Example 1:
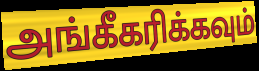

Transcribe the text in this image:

அங்கீகரிக்கவும்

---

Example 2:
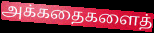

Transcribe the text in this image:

அக்கதைகளைத்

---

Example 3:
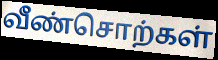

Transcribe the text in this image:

வீண்சொற்கள்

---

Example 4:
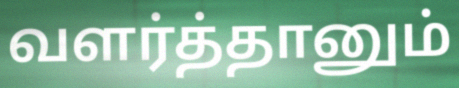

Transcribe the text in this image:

வளர்த்தானும்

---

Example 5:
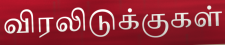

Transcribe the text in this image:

விரலிடுக்குகள்